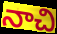
నాచి